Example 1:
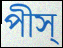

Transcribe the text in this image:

পীস্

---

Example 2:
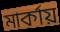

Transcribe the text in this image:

মার্কায়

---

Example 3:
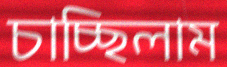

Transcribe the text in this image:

চাচ্ছিলাম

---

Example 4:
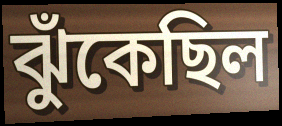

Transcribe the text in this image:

ঝুঁকেছিল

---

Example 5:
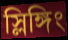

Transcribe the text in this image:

স্লিঙ্গিং